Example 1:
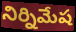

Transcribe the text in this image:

నిర్నిమేష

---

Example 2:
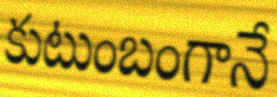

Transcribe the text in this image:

కుటుంబంగానే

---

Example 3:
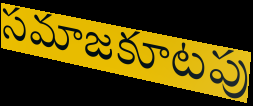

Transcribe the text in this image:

సమాజకూటపు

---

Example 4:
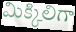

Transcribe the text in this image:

మిక్కిలిగా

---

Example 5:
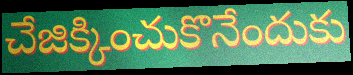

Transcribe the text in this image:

చేజిక్కించుకొనేందుకు